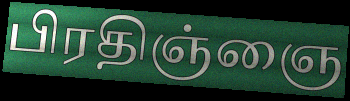
பிரதிஞ்ஞை